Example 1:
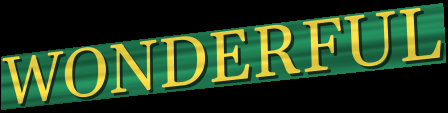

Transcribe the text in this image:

WONDERFUL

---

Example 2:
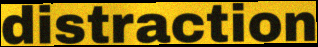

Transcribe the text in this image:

distraction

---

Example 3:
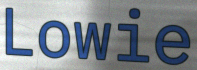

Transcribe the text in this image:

Lowie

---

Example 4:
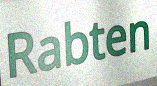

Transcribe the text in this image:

Rabten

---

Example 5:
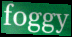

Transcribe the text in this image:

foggy